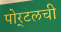
पोर्टलची